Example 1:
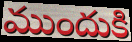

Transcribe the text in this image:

ముందుకి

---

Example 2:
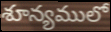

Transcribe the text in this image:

శూన్యములో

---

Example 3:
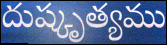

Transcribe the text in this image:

దుష్కృత్యము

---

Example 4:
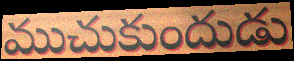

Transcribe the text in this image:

ముచుకుందుడు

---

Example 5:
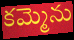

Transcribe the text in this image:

కమ్మెను